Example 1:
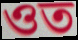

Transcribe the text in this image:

ওত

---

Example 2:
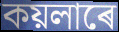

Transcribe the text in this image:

কয়লাৰে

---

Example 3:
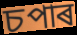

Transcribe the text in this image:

চপাৰ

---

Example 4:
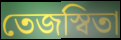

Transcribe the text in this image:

তেজস্বিতা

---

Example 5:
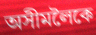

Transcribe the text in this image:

অসীমলৈকে